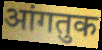
आंगतुक